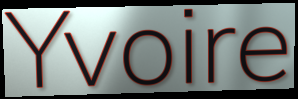
Yvoire